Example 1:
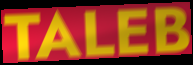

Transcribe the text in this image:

TALEB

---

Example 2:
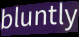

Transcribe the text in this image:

bluntly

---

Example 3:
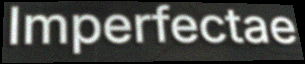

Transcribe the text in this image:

Imperfectae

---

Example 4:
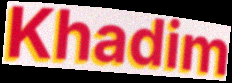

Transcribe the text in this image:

Khadim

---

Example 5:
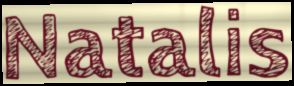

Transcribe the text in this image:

Natalis